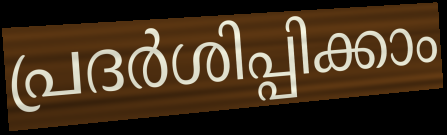
പ്രദർശിപ്പിക്കാം